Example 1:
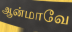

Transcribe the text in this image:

ஆன்மாவே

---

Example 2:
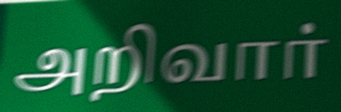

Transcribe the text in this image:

அறிவார்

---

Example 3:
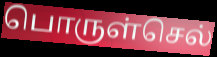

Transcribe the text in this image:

பொருள்செல்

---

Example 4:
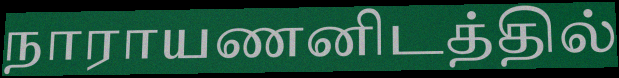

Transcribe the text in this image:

நாராயணனிடத்தில்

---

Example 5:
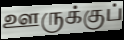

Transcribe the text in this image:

ஊருக்குப்